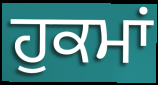
ਹੁਕਮਾਂ